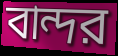
বান্দর